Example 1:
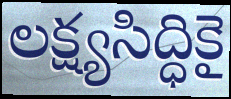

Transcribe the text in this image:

లక్ష్యసిద్ధికై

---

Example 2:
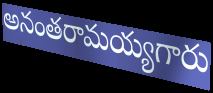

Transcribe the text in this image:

అనంతరామయ్యగారు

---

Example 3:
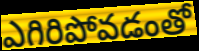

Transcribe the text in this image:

ఎగిరిపోవడంతో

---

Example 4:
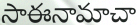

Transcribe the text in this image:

సాఈనామాచా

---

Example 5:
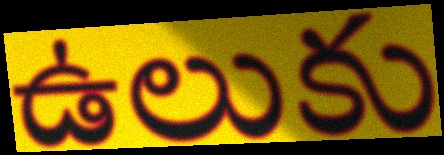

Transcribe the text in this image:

ఉలుకు